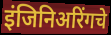
इंजिनिअरिंगचे